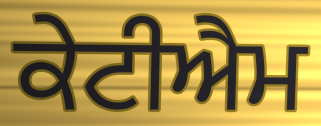
ਕੇਟੀਐਮ